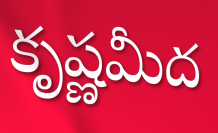
కృష్ణమీద